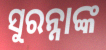
ସୁରନ୍ନାଙ୍କ